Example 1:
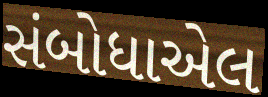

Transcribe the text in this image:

સંબોધાએલ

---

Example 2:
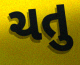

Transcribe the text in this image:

ચતુ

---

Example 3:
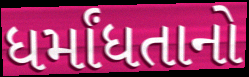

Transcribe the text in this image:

ધર્માંધતાનો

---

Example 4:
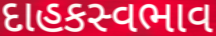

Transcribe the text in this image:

દાહકસ્વભાવ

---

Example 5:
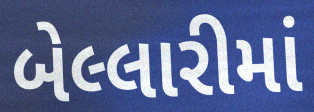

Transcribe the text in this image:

બેલ્લારીમાં